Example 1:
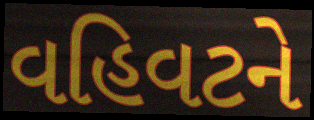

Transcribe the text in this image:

વહિવટને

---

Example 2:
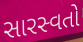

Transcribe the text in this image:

સારસ્વતો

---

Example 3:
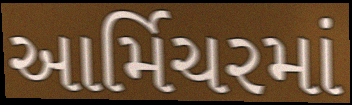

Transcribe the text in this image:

આર્મિચરમાં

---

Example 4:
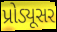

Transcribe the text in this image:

પ્રોડ્યૂસર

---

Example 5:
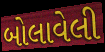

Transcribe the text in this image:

બોલાવેલી